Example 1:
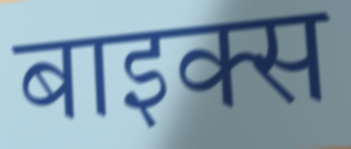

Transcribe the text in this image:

बाइक्स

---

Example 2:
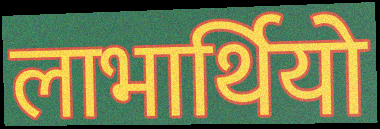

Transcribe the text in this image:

लाभार्थियो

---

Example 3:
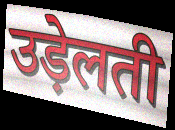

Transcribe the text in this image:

उड़ेलती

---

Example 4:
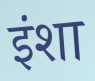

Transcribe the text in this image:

इंशा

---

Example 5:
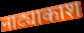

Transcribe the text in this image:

नाट्याकाश